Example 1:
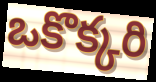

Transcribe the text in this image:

ఒకొక్కరి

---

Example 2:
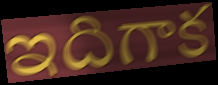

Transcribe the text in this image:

ఇదిగాక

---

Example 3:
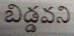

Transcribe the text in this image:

బిడ్డవని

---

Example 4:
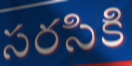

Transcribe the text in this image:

సరసికి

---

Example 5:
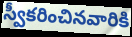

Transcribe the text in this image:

స్వీకరించినవారికి